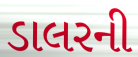
ડાલરની